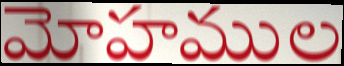
మోహముల